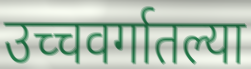
उच्चवर्गातल्या